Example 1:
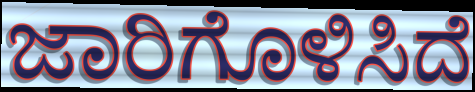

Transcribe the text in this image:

ಜಾರಿಗೊಳಿಸಿದೆ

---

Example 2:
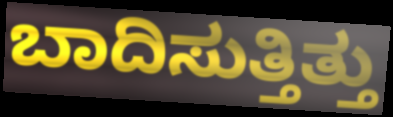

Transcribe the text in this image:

ಬಾದಿಸುತ್ತಿತ್ತು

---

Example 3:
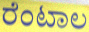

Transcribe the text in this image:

ರೆಂಟಾಲ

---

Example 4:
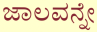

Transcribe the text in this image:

ಜಾಲವನ್ನೇ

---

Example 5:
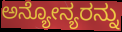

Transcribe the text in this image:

ಅನ್ಯೋನ್ಯರನ್ನು